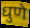
धुणे